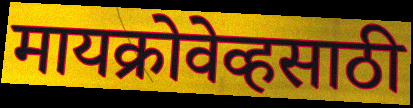
मायक्रोवेव्हसाठी